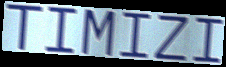
TIMIZI